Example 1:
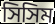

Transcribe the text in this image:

সিসিম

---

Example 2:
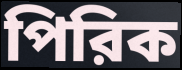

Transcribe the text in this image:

পিরিক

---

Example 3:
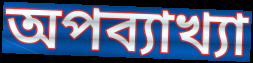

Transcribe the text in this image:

অপব্যাখ্যা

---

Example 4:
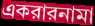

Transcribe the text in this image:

একরারনামা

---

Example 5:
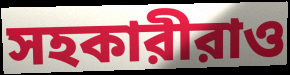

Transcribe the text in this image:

সহকারীরাও